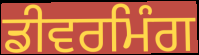
ਡੀਵਰਮਿੰਗ